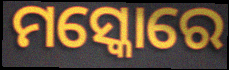
ମସ୍କୋରେ